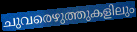
ചുവരെഴുത്തുകളിലും